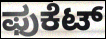
ಫುಕೆಟ್